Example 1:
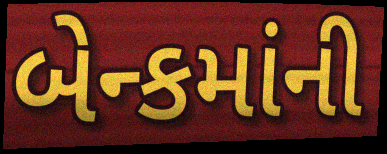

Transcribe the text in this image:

બેન્કમાંની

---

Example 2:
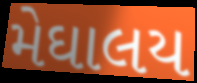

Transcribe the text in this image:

મેઘાલય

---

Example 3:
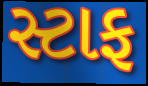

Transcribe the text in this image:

સ્ટાફ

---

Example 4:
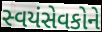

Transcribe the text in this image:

સ્વયંસેવકોને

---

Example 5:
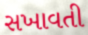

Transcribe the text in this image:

સખાવતી